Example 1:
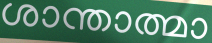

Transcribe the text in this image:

ശാന്താത്മാ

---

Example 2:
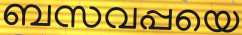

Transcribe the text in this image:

ബസവപ്പയെ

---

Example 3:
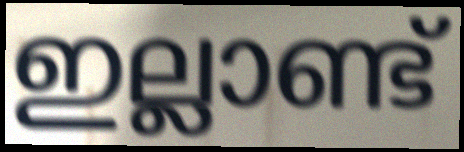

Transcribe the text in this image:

ഇല്ലാണ്ട്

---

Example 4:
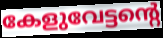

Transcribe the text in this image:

കേളുവേട്ടന്റെ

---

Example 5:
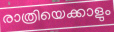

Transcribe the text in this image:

രാത്രിയെക്കാളും